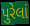
પુરેલાં